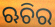
ଋଚିର